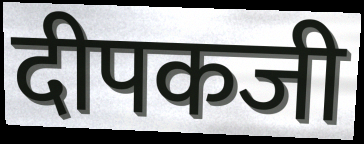
दीपकजी